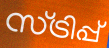
സ്ട്രിപ്പ്